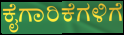
ಕೈಗಾರಿಕೆಗಳಿಗೆ